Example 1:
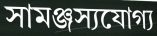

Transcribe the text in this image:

সামঞ্জস্যযোগ্য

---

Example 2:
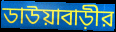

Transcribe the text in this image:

ডাউয়াবাড়ীর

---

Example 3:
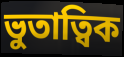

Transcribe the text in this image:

ভুতাত্বিক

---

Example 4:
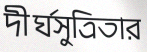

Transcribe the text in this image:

দীর্ঘসুত্রিতার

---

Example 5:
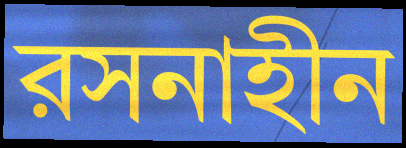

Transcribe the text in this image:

রসনাহীন